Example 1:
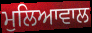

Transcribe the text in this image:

ਮੁਲਿਆਵਾਲ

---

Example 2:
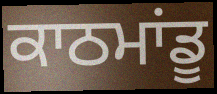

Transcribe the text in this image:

ਕਾਠਮਾਂਡੂ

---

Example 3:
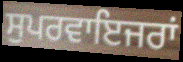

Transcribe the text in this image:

ਸੁਪਰਵਾਇਜਰਾਂ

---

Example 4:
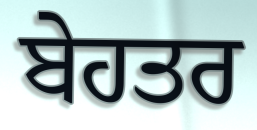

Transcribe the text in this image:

ਬੇਹਤਰ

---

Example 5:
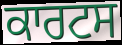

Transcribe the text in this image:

ਕਾਰਟਸ